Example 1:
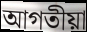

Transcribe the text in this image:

আগতীয়া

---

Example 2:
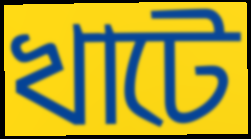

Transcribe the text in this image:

খাটে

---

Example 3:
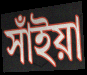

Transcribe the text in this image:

সাঁইয়া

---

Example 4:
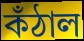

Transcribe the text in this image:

কঁঠাল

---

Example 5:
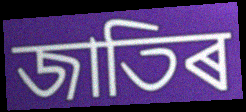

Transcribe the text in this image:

জাতিৰ